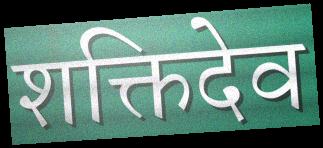
शक्तिदेव